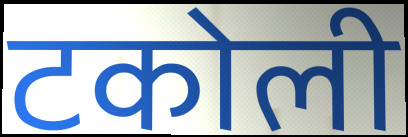
टकोली